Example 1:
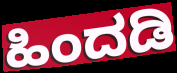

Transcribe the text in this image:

ಹಿಂದಡಿ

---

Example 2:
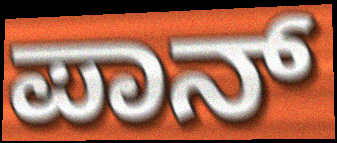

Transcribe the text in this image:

ಪಾನ್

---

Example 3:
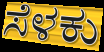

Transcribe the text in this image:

ಸೆಳಕು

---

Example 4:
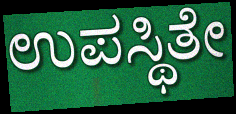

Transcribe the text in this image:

ಉಪಸ್ಥಿತೇ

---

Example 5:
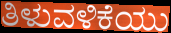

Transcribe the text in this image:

ತಿಳುವಳಿಕೆಯು